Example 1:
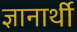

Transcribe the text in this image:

ज्ञानार्थी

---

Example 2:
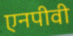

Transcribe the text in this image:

एनपीवी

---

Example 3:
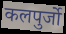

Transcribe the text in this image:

कलपुर्जो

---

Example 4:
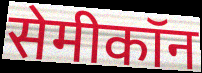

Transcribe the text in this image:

सेमीकॉन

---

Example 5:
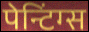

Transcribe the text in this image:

पेन्टिंग्स